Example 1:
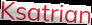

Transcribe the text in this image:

Ksatrian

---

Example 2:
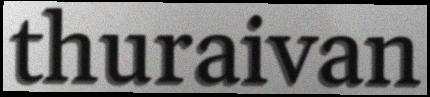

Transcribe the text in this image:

thuraivan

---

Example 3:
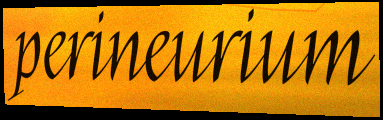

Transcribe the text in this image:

perineurium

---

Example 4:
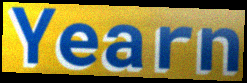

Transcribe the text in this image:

Yearn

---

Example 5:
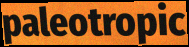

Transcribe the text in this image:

paleotropic